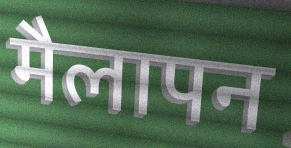
मैलापन